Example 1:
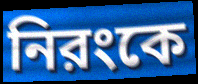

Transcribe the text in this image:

নিরংকে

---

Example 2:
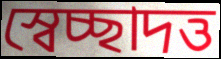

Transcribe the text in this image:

স্বেচ্ছাদত্ত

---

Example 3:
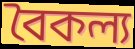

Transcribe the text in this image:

বৈকল্য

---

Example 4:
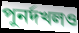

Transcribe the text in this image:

পুনর্দখলও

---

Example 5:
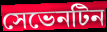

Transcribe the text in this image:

সেভেনটিন